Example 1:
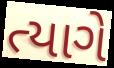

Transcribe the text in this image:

ત્યાગે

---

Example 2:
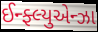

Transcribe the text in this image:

ઈન્ફ્લ્યુએન્ઝા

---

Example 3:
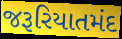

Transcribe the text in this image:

જરૂરિયાતમંદ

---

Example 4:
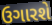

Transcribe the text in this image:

ઉગારશે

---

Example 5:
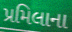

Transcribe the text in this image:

પ્રમિલાના